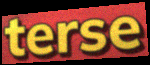
terse